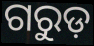
ଗରୁଡ଼